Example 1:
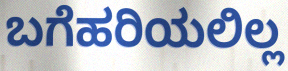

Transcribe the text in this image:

ಬಗೆಹರಿಯಲಿಲ್ಲ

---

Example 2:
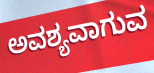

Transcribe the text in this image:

ಅವಶ್ಯವಾಗುವ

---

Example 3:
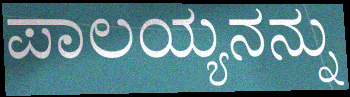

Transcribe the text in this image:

ಪಾಲಯ್ಯನನ್ನು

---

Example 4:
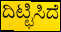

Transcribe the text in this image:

ದಿಟ್ಟಿಸಿದೆ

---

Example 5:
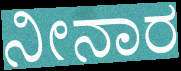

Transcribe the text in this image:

ನೀನಾರ